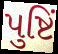
પુષ્ટિં